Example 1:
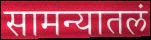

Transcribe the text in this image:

सामन्यातलं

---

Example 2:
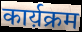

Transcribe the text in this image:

कार्य़क्रम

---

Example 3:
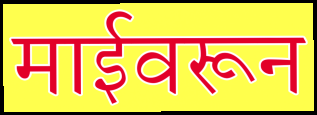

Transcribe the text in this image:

माईवरून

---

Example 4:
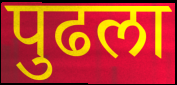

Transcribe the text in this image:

पुढला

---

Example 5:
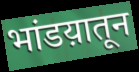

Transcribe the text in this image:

भांडय़ातून